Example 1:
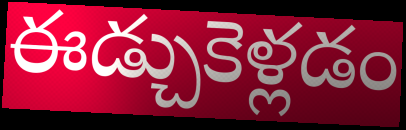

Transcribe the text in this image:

ఈడ్చుకెళ్లడం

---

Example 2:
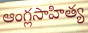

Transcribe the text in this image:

ఆంగ్లసాహిత్య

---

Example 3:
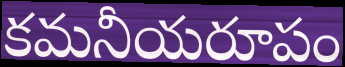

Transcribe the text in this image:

కమనీయరూపం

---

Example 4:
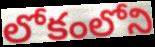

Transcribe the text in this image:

లోకంలోని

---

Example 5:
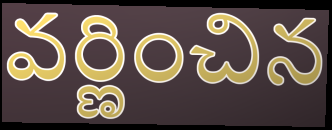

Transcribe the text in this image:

వర్ణించిన